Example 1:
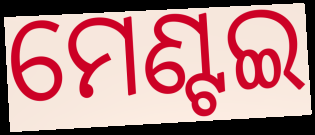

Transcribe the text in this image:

ମେଣ୍ଟଇ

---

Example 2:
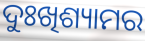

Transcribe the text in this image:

ଦୁଃଖିଶ୍ୟାମର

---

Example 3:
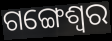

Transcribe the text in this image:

ଗଙ୍ଗେଶ୍ଵର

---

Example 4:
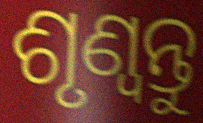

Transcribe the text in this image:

ଶୃଣ୍ଵନ୍ତୁ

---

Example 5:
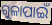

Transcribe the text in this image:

ଗୁଳାପାଇଁ